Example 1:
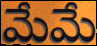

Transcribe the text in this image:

మేమే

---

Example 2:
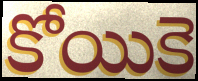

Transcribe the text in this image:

కోయికె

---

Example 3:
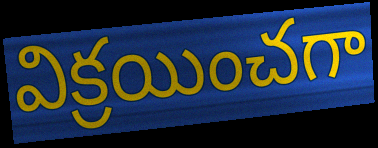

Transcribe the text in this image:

విక్రయించగా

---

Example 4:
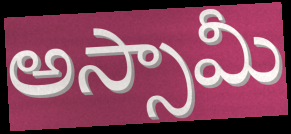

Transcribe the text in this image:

అస్సామీ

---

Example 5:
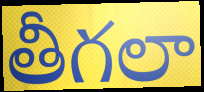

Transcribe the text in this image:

తీగలా